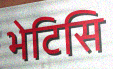
भेटिसि